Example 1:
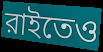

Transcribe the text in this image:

রাইতেও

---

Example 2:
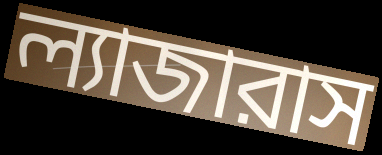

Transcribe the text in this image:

ল্যাজারাস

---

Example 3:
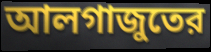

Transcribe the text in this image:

আলগাজুতের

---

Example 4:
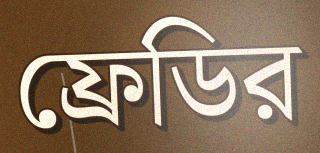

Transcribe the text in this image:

ফ্রেডির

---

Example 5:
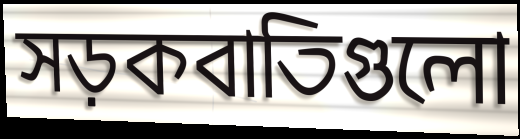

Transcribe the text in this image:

সড়কবাতিগুলো